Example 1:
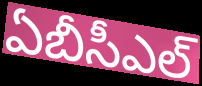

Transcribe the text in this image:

ఏబీసీఎల్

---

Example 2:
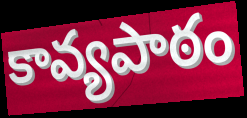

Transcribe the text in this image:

కావ్యపాఠం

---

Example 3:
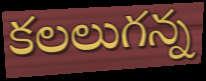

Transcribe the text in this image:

కలలుగన్న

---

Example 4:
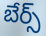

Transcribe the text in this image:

బేర్స్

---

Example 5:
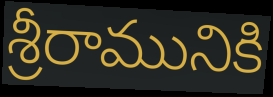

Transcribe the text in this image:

శ్రీరామునికి